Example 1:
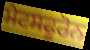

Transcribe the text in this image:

ਮੇਟਸਫੂਰੋਨ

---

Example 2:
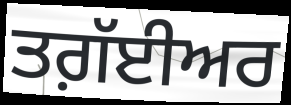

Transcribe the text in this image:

ਤਗ਼ੱਈਅਰ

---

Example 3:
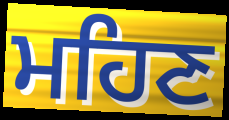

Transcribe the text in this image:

ਮਹਿਣ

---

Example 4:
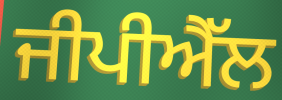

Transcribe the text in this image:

ਜੀਪੀਐੱਲ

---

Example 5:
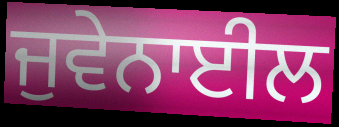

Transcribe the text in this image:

ਜੁਵੇਨਾਈਲ